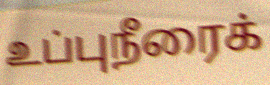
உப்புநீரைக்